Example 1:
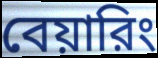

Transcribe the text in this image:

বেয়ারিং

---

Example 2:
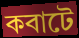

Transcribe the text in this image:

কবাটে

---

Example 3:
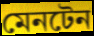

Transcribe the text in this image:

মেনটেন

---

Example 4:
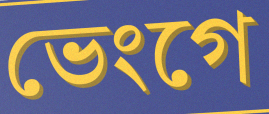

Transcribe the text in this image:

ভেংগে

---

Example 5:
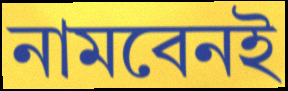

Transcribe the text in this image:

নামবেনই